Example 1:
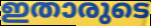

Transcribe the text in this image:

ഇതാരുടെ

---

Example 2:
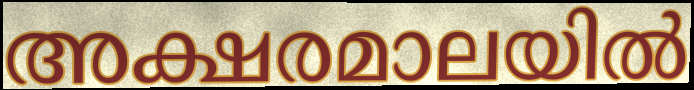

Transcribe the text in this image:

അക്ഷരമാലയിൽ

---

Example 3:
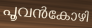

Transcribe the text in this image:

പൂവൻകോഴി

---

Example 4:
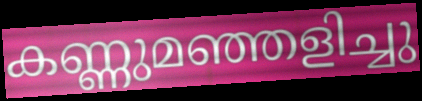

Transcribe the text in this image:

കണ്ണുമഞ്ഞളിച്ചു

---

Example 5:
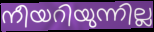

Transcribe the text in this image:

നീയറിയുന്നില്ല